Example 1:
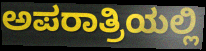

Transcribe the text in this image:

ಅಪರಾತ್ರಿಯಲ್ಲಿ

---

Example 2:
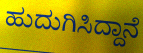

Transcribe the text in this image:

ಹುದುಗಿಸಿದ್ದಾನೆ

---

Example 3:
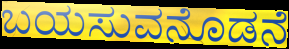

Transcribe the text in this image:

ಬಯಸುವನೊಡನೆ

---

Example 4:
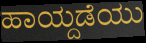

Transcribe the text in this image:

ಹಾಯ್ದಡೆಯು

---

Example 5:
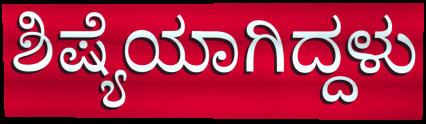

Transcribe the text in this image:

ಶಿಷ್ಯೆಯಾಗಿದ್ದಳು